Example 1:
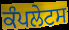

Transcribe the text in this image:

ਕੰਪਲੇਟਸ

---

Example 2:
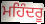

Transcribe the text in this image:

ਮਹਿੰਦਰੂ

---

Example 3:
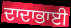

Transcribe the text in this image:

ਦਾਦਾਭਾਈ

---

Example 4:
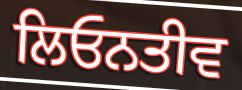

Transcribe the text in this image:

ਲਿਓਨਤੀਵ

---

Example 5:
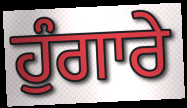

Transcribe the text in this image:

ਹੁੰਗਾਰੇ